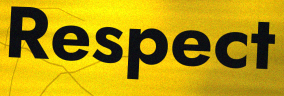
Respect